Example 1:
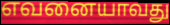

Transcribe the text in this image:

எவனையாவது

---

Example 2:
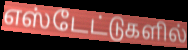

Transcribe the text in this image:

எஸ்டேட்டுகளில்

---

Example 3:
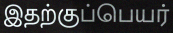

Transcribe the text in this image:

இதற்குப்பெயர்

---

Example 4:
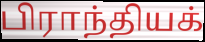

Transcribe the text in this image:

பிராந்தியக்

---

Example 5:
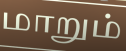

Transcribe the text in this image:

மாறும்